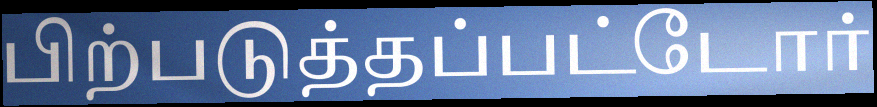
பிற்படுத்தப்பட்டோர்